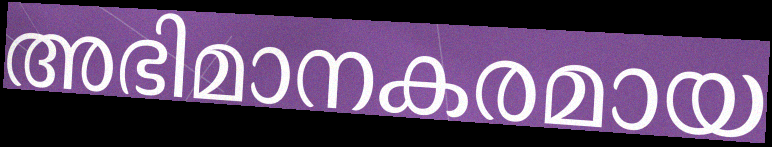
അഭിമാനകരമായ